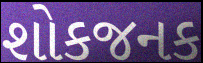
શોકજનક